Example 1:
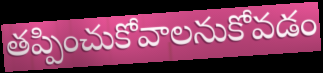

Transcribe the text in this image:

తప్పించుకోవాలనుకోవడం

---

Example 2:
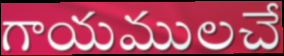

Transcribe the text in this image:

గాయములచే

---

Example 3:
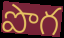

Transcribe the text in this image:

పొగ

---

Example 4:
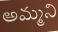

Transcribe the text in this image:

అమ్మని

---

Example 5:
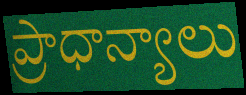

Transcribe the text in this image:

ప్రాధాన్యాలు